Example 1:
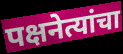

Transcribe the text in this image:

पक्षनेत्यांचा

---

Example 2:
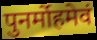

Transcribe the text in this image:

पुनर्मोहमेवं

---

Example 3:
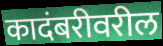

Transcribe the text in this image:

कादंबरीवरील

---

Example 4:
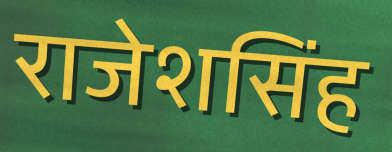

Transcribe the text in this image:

राजेशसिंह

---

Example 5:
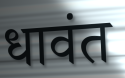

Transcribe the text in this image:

धावंत